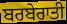
ਬਰਬੇਰਾਤੀ